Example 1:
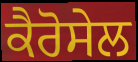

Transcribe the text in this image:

ਕੈਰੋਸੇਲ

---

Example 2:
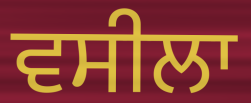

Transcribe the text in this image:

ਵਸੀਲਾ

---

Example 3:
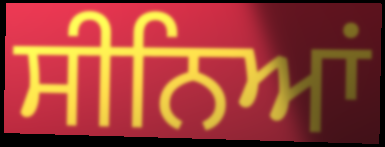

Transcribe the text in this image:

ਸੀਨਿਆਂ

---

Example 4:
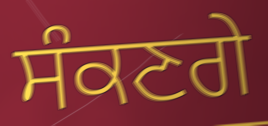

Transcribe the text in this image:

ਸੰਕਣਗੇ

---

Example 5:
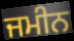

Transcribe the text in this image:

ਜਮੀਨ